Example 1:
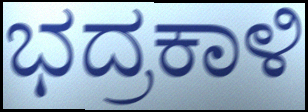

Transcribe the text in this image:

ಭದ್ರಕಾಳಿ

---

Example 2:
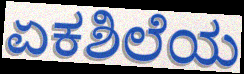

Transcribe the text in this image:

ಏಕಶಿಲೆಯ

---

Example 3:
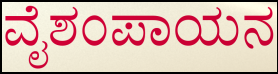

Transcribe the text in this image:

ವೈಶಂಪಾಯನ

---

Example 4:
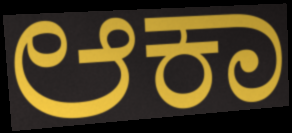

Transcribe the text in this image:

ಆಕಾ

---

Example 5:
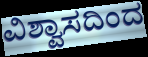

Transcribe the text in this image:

ವಿಶ್ವಾಸದಿಂದ